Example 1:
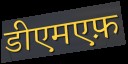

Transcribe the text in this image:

डीएमएफ़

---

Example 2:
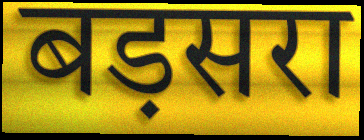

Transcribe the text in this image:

बड़सरा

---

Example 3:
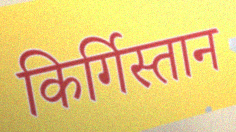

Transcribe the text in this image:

किर्गिस्तान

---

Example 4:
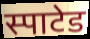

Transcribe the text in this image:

स्पाटेड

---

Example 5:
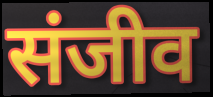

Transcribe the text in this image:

संजीव